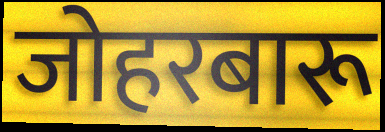
जोहरबारू